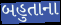
બહુતાના